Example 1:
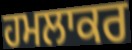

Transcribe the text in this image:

ਹਮਲਾਕਰ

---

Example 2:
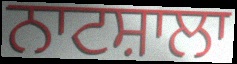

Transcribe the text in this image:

ਨਾਟਸ਼ਾਲਾ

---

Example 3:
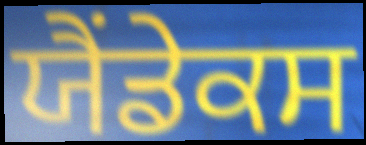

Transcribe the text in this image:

ਯੈਂਡੇਕਸ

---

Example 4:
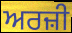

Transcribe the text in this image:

ਅਰਜ਼ੀ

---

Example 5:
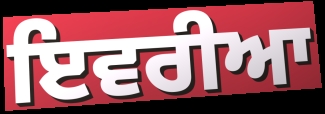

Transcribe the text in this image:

ਇਵਰੀਆ